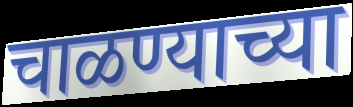
चाळण्याच्या